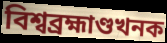
বিশ্বব্ৰহ্মাণ্ডখনক